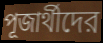
পূজার্থীদের